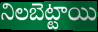
నిలబెట్టాయి